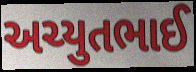
અચ્યુતભાઈ